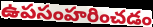
ఉపసంహరించడం